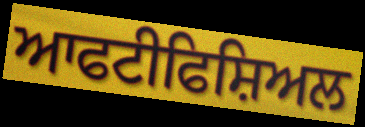
ਆਫਟੀਫਿਸ਼ਿਅਲ